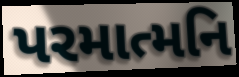
પરમાત્મનિ